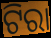
ଟିରା